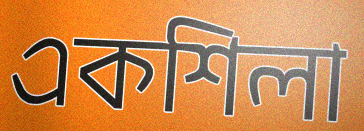
একশিলা